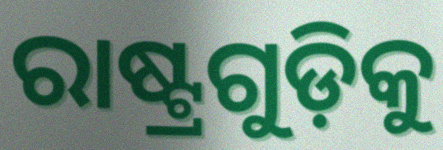
ରାଷ୍ଟ୍ରଗୁଡ଼ିକୁ